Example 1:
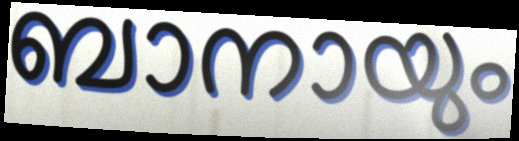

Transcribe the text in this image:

ബാനായും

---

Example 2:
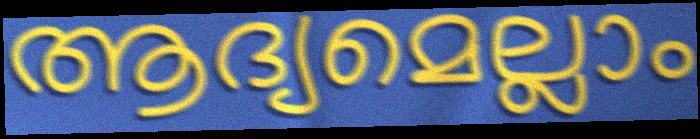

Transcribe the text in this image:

ആദ്യമെല്ലാം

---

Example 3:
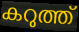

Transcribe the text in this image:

കറുത്ത്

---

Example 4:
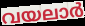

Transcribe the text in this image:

വയലാർ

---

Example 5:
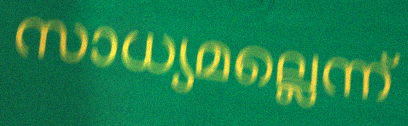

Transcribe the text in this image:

സാധ്യമല്ലെന്ന്